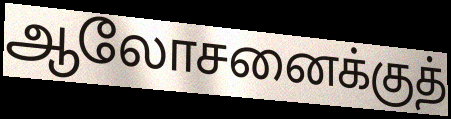
ஆலோசனைக்குத்